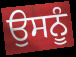
ਉਸਨੂੰ